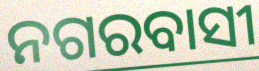
ନଗରବାସୀ